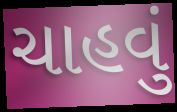
ચાહવું